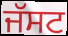
ਜੱਸਟ